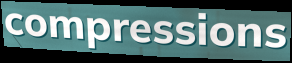
compressions